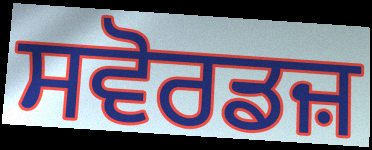
ਸਵੋਰਡਜ਼